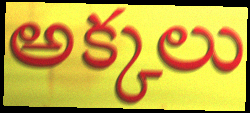
అక్కలు